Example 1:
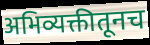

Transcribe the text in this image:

अभिव्यक्तीतूनच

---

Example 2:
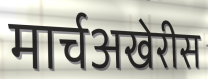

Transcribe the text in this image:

मार्चअखेरीस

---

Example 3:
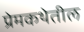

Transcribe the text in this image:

प्रेमकथेतील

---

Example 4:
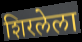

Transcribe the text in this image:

शिरलेला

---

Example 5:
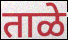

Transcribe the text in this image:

ताळे